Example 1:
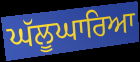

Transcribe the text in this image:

ਘੱਲੂਘਾਰਿਆ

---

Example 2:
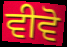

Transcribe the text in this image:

ਵੀਵੋ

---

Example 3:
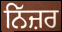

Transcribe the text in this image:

ਨਿੱਜ਼ਰ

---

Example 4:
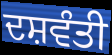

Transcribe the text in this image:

ਦਸ਼ਵੰਤੀ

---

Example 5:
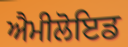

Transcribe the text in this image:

ਐਮੀਲੋਇਡ